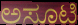
ಅಸೂಟಿ